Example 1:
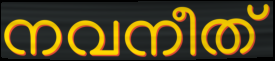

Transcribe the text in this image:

നവനീത്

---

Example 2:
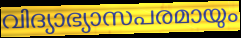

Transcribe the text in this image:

വിദ്യാഭ്യാസപരമായും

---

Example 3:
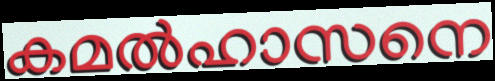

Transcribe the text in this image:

കമൽഹാസനെ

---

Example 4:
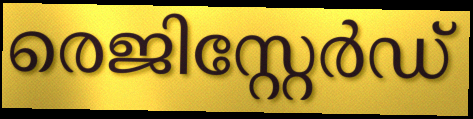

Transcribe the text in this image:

രെജിസ്റ്റേർഡ്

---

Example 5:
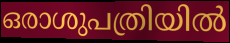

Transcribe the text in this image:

ഒരാശുപത്രിയിൽ